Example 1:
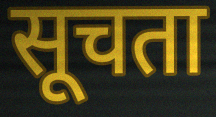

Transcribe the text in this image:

सूचता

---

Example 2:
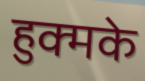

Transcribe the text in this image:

हुक्मके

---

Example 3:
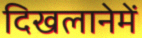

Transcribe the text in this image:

दिखलानेमें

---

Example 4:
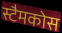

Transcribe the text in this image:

स्टैमकोस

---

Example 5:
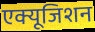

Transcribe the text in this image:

एक्यूजिशन